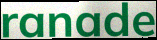
ranade